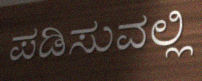
ಪಡಿಸುವಲ್ಲಿ